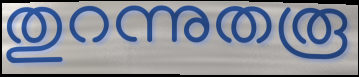
തുറന്നുതരൂ